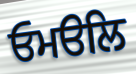
ਓਮੳਲਿ